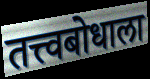
तत्त्वबोधाला